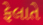
ફેલાતે